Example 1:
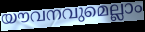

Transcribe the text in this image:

യൗവനവുമെല്ലാം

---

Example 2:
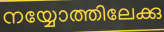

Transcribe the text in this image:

നയ്യോത്തിലേക്കു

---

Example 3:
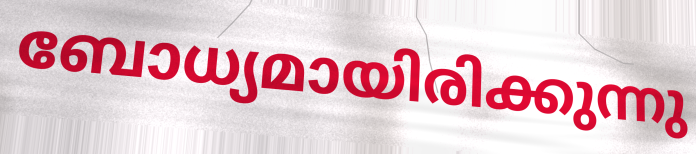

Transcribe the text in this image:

ബോധ്യമായിരിക്കുന്നു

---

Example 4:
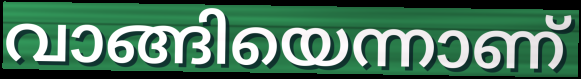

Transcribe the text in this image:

വാങ്ങിയെന്നാണ്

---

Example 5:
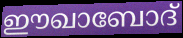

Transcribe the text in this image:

ഈഖാബോദ്